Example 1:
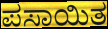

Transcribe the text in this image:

ಪಸಾಯಿತ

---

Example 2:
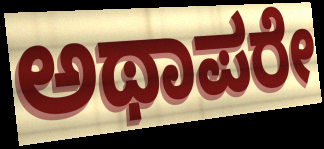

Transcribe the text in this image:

ಅಥಾಪರೇ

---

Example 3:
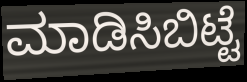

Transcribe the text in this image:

ಮಾಡಿಸಿಬಿಟ್ಟೆ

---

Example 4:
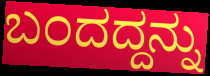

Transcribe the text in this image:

ಬಂದದ್ದನ್ನು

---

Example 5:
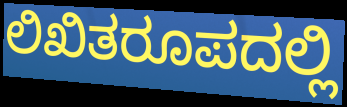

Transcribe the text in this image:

ಲಿಖಿತರೂಪದಲ್ಲಿ